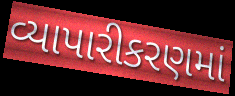
વ્યાપારીકરણમાં